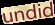
undid